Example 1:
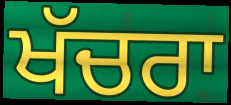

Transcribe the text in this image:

ਖੱਚਰਾ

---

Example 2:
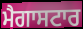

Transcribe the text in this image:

ਮੈਗਾਸਟਾਰ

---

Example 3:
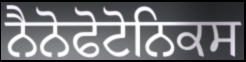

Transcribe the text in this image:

ਨੈਨੋਫੋਟੋਨਿਕਸ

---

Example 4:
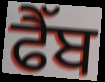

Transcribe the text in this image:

ਫੈੱਬ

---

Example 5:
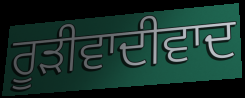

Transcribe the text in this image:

ਰੂੜੀਵਾਦੀਵਾਦ